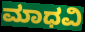
ಮಾಧವಿ